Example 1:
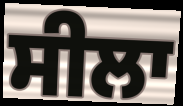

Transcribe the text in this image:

ਸੀਲਾ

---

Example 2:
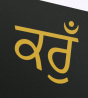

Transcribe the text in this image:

ਕਰੁਁ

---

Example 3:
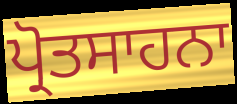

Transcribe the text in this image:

ਪ੍ਰੋਤਸਾਹਨਾ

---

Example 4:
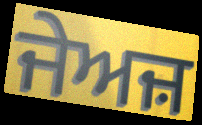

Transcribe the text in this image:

ਜੇਅਜ਼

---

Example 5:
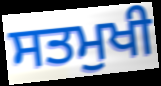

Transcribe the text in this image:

ਸਤਮੁਖੀ